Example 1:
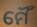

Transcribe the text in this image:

ମୈଁ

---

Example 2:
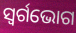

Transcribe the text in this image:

ସ୍ୱର୍ଗଭୋଗ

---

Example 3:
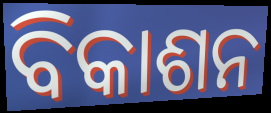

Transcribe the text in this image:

ବିକାଶନ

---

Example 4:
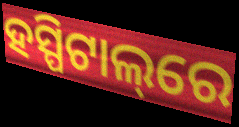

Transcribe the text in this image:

ହସ୍ପିଟାଲ୍‌ରେ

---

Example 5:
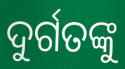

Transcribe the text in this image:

ଦୁର୍ଗତଙ୍କୁ